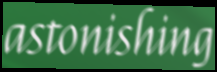
astonishing